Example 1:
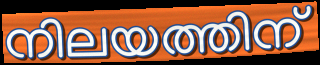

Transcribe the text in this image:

നിലയത്തിന്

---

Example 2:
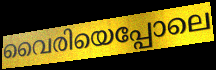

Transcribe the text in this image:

വൈരിയെപ്പോലെ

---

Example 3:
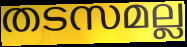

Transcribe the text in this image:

തടസമല്ല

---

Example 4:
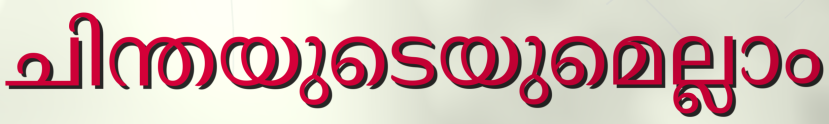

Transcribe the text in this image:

ചിന്തയുടെയുമെല്ലാം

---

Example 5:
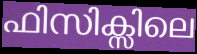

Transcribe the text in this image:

ഫിസിക്സിലെ